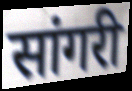
सांगरी